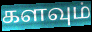
களவும்